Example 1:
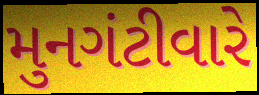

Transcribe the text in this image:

મુનગંટીવારે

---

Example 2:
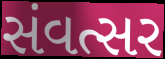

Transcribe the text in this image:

સંવત્સર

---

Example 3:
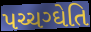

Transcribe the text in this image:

પચ્ચગ્ઘેતિ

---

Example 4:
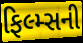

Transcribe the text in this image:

ફિલ્મ્સની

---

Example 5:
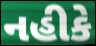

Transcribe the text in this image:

નહીકે